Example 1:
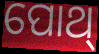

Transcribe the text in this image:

ପୋଥ୍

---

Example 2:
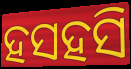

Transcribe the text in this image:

ହସହସି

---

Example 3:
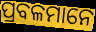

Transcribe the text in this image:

ପ୍ରବଳମାନେ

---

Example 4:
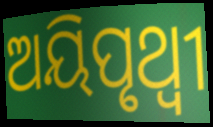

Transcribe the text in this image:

ଅୟିପୃଥ୍ୱୀ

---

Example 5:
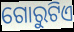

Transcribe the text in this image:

ଗୋରୁଟିଏ